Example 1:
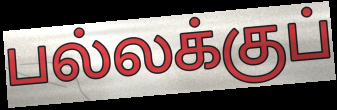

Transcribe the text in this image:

பல்லக்குப்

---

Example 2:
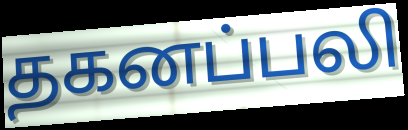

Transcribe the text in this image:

தகனப்பலி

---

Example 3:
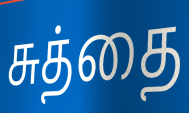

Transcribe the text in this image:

சுத்தை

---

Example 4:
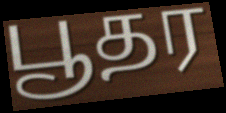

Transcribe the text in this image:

பூதர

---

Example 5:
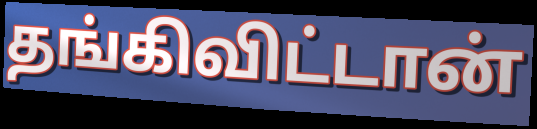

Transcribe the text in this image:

தங்கிவிட்டான்